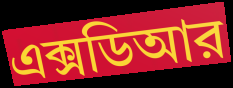
এক্সডিআর